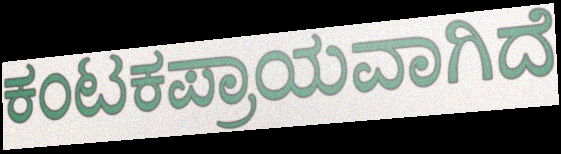
ಕಂಟಕಪ್ರಾಯವಾಗಿದೆ